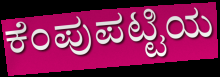
ಕೆಂಪುಪಟ್ಟಿಯ